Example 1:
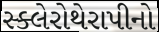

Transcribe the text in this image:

સ્ક્લેરોથેરાપીનો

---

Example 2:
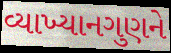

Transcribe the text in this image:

વ્યાખ્યાનગુણને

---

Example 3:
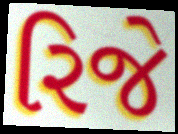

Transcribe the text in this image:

રિજે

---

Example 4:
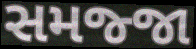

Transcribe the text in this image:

સમજ્જા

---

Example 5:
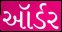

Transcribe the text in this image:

ઑર્ડર